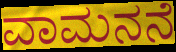
ವಾಮನನೆ